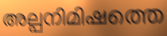
അല്പനിമിഷത്തെ